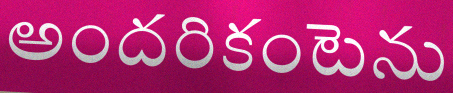
అందరికంటెను